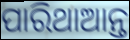
ପାରିଥାଆନ୍ତ